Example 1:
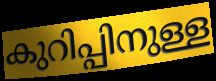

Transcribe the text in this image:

കുറിപ്പിനുള്ള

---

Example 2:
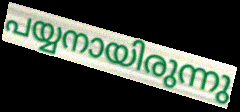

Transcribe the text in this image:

പയ്യനായിരുന്നു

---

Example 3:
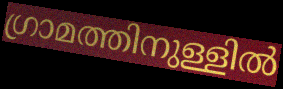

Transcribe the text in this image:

ഗ്രാമത്തിനുള്ളിൽ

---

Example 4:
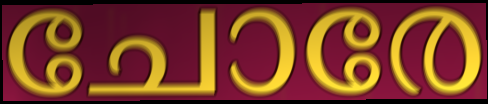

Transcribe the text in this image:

ചോരേ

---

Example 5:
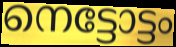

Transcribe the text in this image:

നെട്ടോട്ടം